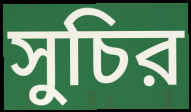
সুচির